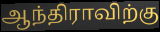
ஆந்திராவிற்கு